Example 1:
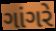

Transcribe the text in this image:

ગાંગરે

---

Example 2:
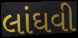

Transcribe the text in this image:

લાંઘવી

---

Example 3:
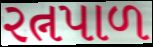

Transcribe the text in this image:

રત્નપાળ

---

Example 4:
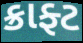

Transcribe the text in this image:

ક્રાફ્ટ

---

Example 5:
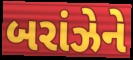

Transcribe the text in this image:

બરાંઝેને